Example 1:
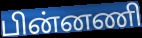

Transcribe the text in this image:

பின்னணி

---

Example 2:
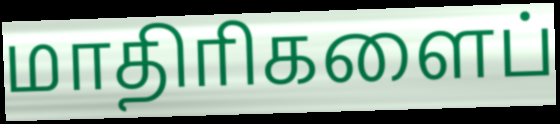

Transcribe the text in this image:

மாதிரிகளைப்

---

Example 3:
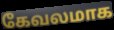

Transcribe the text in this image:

கேவலமாக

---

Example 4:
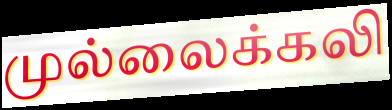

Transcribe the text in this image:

முல்லைக்கலி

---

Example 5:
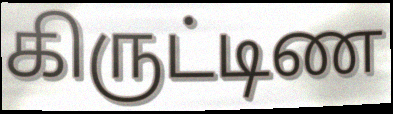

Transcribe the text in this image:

கிருட்டிண